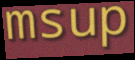
msup